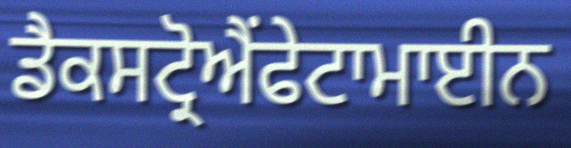
ਡੈਕਸਟ੍ਰੋਐਂਫੇਟਾਮਾਈਨ